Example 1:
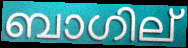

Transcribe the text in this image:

ബാഗില്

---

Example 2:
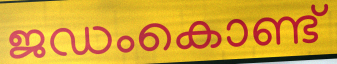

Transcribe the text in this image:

ജഡംകൊണ്ട്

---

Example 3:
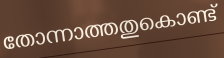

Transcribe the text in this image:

തോന്നാത്തതുകൊണ്ട്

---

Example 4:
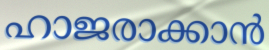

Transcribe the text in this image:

ഹാജരാക്കാൻ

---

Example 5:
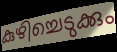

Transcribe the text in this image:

കുഴിച്ചെടുക്കും